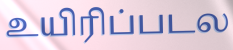
உயிரிப்படல